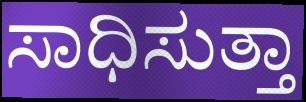
ಸಾಧಿಸುತ್ತಾ